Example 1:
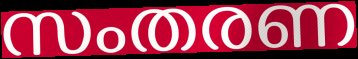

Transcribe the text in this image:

സംതരണ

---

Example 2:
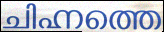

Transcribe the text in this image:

ചിഹ്നത്തെ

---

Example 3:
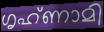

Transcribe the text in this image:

ഗൃഹ്ണാമി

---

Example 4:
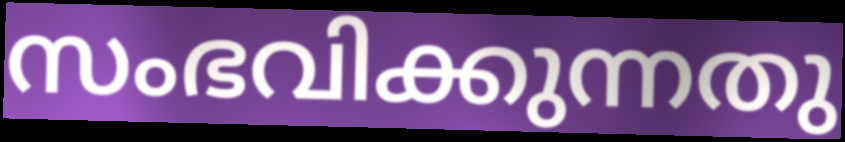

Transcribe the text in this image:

സംഭവിക്കുന്നതു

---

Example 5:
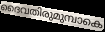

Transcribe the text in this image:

ദൈവതിരുമുമ്പാകെ